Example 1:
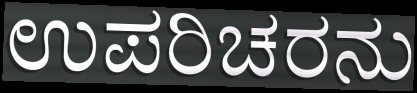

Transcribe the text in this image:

ಉಪರಿಚರನು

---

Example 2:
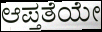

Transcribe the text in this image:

ಆಪ್ತತೆಯೇ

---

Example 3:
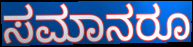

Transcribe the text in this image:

ಸಮಾನರೂ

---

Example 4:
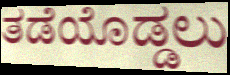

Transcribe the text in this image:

ತಡೆಯೊಡ್ಡಲು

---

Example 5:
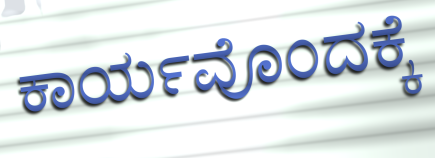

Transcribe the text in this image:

ಕಾರ್ಯವೊಂದಕ್ಕೆ